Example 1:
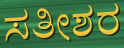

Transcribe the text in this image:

ಸತೀಶರ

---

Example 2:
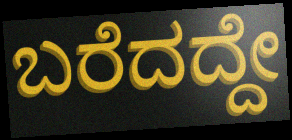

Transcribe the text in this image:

ಬರೆದದ್ದೇ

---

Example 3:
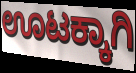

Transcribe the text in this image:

ಊಟಕ್ಕಾಗಿ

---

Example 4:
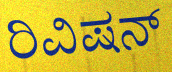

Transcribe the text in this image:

ರಿವಿಷನ್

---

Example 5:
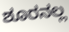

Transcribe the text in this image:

ಶೂರನಲ್ಲ